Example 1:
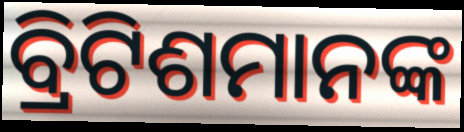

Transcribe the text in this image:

ବ୍ରିଟିଶମାନଙ୍କ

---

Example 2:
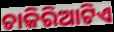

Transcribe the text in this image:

ଚାକିରିଆଟିଏ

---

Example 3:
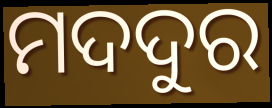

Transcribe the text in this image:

ମଦଦୁର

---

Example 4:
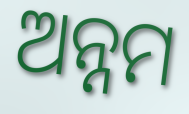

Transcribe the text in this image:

ଅନ୍ନମ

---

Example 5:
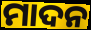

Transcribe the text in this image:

ମାଦନ